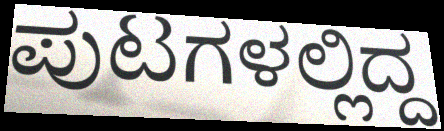
ಪುಟಗಳಲ್ಲಿದ್ದ